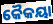
କୈକୟା